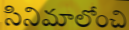
సినిమాలోంచి